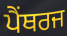
ਪੈਂਥਰਜ